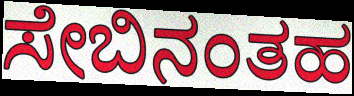
ಸೇಬಿನಂತಹ